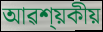
আৱশ্য়কীয়